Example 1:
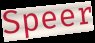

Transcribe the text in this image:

Speer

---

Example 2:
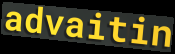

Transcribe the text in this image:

advaitin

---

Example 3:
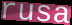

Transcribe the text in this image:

rusa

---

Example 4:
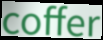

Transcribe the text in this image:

coffer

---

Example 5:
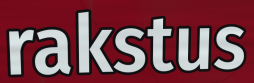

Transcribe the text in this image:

rakstus